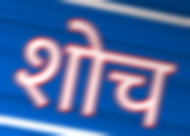
शोच